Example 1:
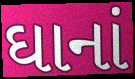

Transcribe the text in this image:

ઘાનાં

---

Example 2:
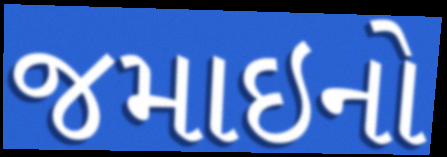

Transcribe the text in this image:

જમાઇનો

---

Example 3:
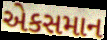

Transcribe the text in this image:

એકસમાન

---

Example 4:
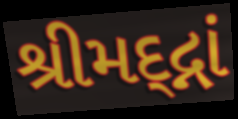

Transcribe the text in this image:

શ્રીમદ્દ્નાં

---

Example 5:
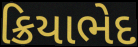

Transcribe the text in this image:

ક્રિયાભેદ